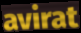
avirat